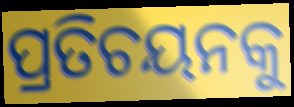
ପ୍ରତିଚୟନକୁ